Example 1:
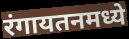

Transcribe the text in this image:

रंगायतनमध्ये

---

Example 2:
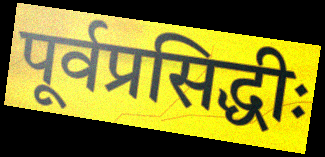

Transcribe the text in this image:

पूर्वप्रसिद्धीः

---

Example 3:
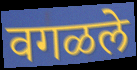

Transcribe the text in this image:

वगळले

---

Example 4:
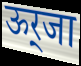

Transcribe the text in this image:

ऊर्जा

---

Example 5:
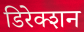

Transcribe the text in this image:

डिरेक्शन